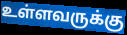
உள்ளவருக்கு